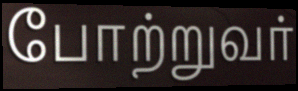
போற்றுவர்